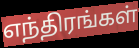
எந்திரங்கள்